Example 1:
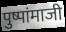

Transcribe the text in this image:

पुष्पांमाजी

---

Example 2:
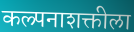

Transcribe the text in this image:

कल्पनाशक्तीला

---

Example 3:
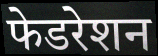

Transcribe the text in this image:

फेडरेशन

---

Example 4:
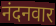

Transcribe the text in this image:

नंदनवार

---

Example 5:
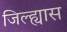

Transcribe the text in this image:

जिल्ह्यास